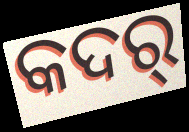
କଦର୍